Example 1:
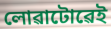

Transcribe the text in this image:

লোৱাটোৱেই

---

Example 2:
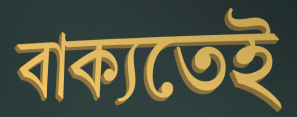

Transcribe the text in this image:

বাক্যতেই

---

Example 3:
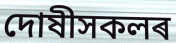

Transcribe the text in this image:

দোষীসকলৰ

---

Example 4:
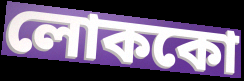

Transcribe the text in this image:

লোককো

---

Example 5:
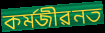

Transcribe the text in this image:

কৰ্মজীৱনত